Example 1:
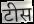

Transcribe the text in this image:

टीस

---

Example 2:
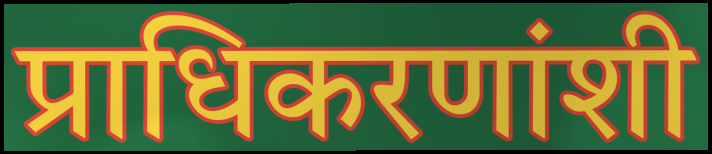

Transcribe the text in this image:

प्राधिकरणांशी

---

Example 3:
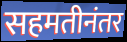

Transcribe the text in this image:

सहमतीनंतर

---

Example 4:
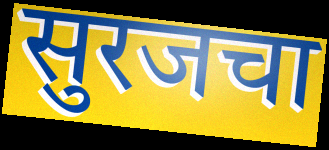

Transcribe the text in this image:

सुरजचा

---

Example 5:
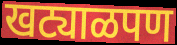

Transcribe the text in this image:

खट्याळपण